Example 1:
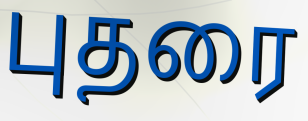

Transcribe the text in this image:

புதரை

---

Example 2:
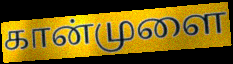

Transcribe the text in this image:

கான்முளை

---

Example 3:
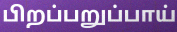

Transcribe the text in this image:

பிறப்பறுப்பாய்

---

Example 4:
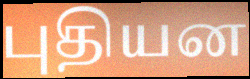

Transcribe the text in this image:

புதியன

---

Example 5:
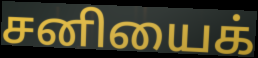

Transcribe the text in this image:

சனியைக்